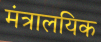
मंत्रालयिक